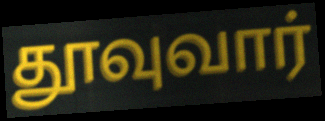
தூவுவார்